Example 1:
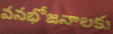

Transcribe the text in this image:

వనభోజనాలకు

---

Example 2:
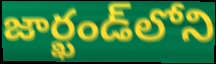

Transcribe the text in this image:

జార్ఖండ్‌లోని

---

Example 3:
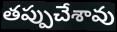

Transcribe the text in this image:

తప్పుచేశావు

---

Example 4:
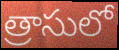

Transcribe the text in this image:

త్రాసులో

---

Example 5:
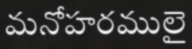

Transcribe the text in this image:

మనోహరములై